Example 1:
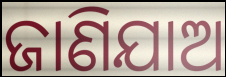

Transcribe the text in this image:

ଜାଣିଯାଅ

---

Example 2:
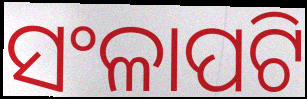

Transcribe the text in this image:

ସଂଳାପଟି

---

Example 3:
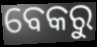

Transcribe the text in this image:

ବେକରୁ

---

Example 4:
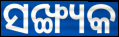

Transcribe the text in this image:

ସଙ୍ଖ୍ୟକ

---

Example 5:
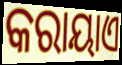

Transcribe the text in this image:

କରାୟାଏ